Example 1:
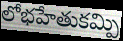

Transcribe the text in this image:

లోభహేతుకమ్పి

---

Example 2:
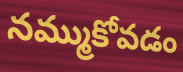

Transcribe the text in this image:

నమ్ముకోవడం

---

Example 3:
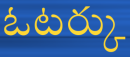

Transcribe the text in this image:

ఓటర్కు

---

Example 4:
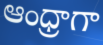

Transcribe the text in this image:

ఆంధ్రాగా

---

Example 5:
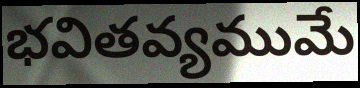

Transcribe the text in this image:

భవితవ్యముమే